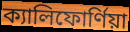
ক্যালিফোর্ণিয়া